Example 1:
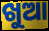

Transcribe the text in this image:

ଖୁଆ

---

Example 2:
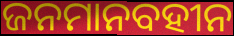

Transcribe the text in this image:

ଜନମାନବହୀନ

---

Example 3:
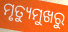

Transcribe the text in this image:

ମୃତ୍ୟୁମୁଖରୁ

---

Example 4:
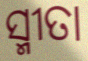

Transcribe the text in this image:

ସ୍ମୀତା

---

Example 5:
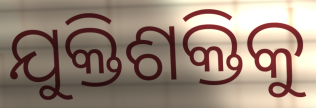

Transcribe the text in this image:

ଯୁକ୍ତିଶକ୍ତିକୁ